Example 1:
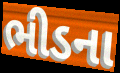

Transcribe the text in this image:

ભીડના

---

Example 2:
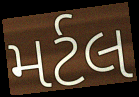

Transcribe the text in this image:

મર્ટલ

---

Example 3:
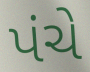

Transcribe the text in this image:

પંચે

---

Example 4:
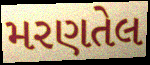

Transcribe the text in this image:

મરણતેલ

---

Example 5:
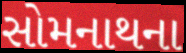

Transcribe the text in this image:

સોમનાથના